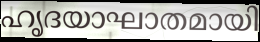
ഹൃദയാഘാതമായി